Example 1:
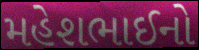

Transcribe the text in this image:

મહેશભાઈનો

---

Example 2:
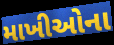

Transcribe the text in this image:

માખીઓના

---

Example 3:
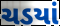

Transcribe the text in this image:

ચડયાં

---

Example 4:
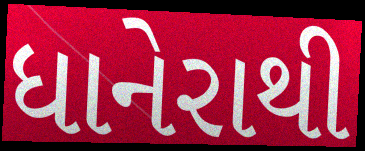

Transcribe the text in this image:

ધાનેરાથી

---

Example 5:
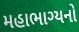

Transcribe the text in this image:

મહાભાગ્યનો